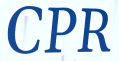
CPR